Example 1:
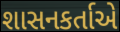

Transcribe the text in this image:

શાસનકર્તાએ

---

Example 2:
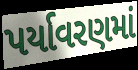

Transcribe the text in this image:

પર્યાવરણમાં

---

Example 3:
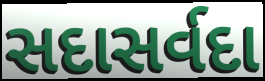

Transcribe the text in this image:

સદાસર્વદા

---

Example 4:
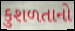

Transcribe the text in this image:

કુશળતાનો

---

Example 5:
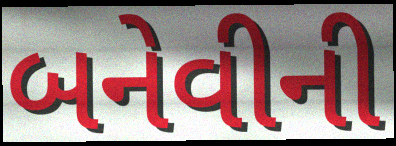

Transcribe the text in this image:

બનેવીની